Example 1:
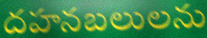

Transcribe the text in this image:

దహనబలులను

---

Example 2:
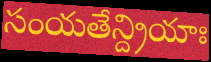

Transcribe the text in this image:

సంయతేన్ద్రియాః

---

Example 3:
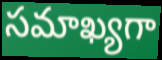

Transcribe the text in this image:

సమాఖ్యగా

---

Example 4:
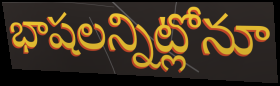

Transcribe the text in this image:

భాషలన్నిట్లోనూ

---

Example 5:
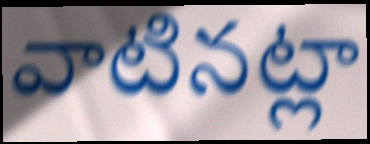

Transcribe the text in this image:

వాటినట్లా